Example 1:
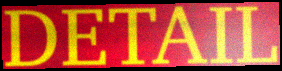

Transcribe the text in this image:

DETAIL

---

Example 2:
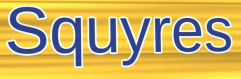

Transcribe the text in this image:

Squyres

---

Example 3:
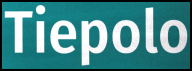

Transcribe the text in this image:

Tiepolo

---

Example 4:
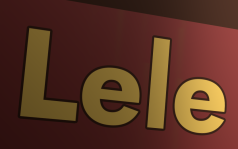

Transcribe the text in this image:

Lele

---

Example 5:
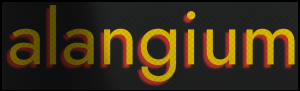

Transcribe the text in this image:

alangium